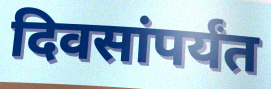
दिवसांपर्यंत